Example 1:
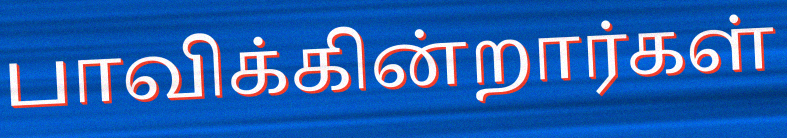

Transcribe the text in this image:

பாவிக்கின்றார்கள்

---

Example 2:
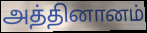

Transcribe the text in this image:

அத்தினானம்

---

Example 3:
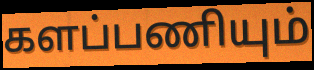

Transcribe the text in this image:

களப்பணியும்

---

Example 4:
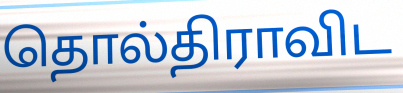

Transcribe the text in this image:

தொல்திராவிட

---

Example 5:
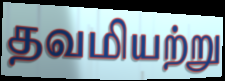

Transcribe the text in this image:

தவமியற்று